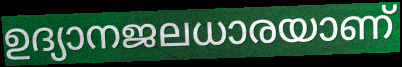
ഉദ്യാനജലധാരയാണ്